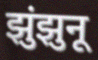
झुंझुनू